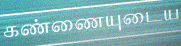
கண்ணையுடைய